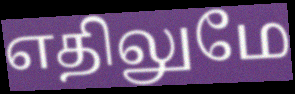
எதிலுமே